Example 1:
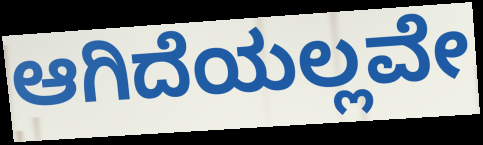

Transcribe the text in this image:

ಆಗಿದೆಯಲ್ಲವೇ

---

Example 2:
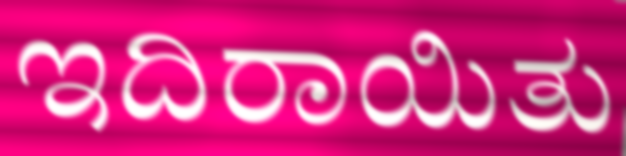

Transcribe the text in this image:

ಇದಿರಾಯಿತು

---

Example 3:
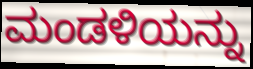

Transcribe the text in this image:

ಮಂಡಳಿಯನ್ನು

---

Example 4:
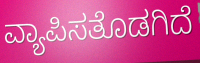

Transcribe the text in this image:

ವ್ಯಾಪಿಸತೊಡಗಿದೆ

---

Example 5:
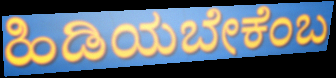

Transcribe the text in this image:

ಹಿಡಿಯಬೇಕೆಂಬ